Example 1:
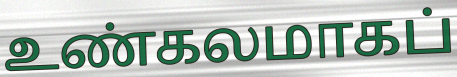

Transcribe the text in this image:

உண்கலமாகப்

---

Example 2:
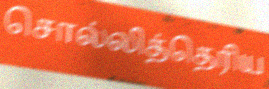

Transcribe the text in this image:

சொல்லித்தெரிய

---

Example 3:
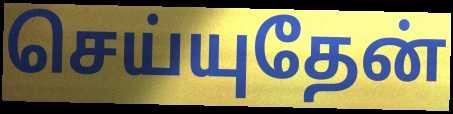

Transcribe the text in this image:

செய்யுதேன்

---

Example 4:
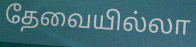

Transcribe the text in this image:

தேவையில்லா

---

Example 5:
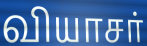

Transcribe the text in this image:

வியாசர்